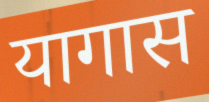
यागास